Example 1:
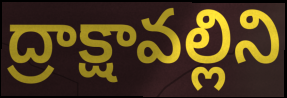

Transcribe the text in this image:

ద్రాక్షావల్లిని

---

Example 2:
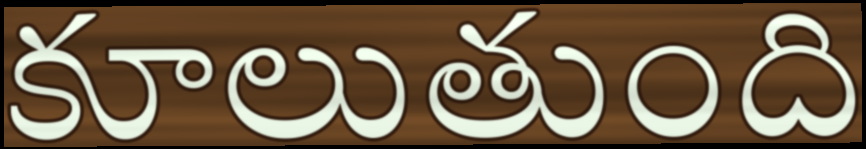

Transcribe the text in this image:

కూలుతుంది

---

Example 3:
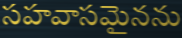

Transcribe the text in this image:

సహవాసమైనను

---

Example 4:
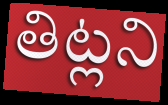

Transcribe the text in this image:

తిట్లని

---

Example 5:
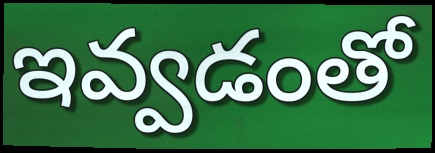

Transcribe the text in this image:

ఇవ్వడంతో